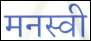
मनस्वी